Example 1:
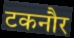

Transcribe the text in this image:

टकनौर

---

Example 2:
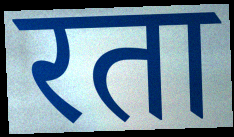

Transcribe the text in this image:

रता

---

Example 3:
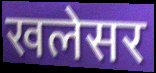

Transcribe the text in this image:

खलेसर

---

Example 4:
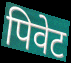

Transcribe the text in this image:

पिवेट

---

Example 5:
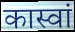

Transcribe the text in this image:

कास्वां